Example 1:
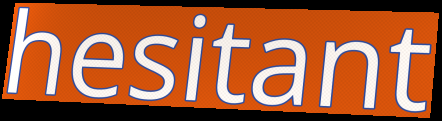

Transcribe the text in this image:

hesitant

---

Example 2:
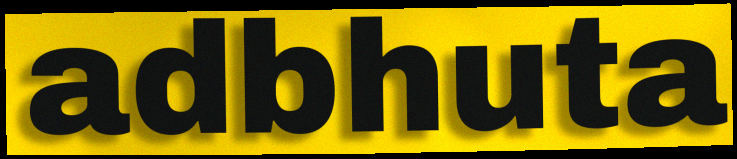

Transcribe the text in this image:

adbhuta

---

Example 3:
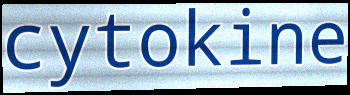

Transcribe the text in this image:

cytokine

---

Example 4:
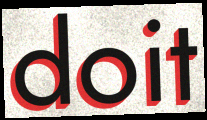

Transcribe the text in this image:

doit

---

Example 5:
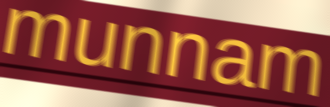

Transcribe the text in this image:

munnam